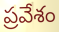
ప్రవేశం